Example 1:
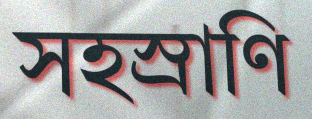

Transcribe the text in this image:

সহস্রাণি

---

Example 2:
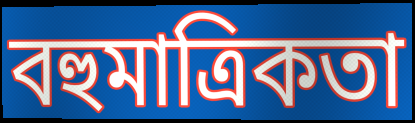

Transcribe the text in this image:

বহুমাত্রিকতা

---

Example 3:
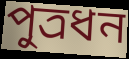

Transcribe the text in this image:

পুত্রধন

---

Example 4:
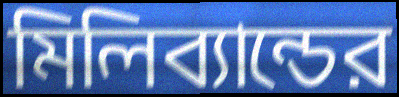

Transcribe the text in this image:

মিলিব্যান্ডের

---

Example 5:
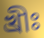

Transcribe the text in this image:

খ্রীঃ